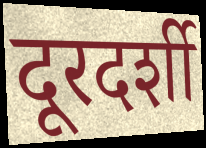
दूरदर्शी